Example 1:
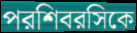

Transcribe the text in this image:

পরশিবরসিকে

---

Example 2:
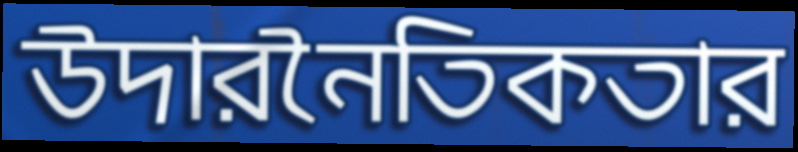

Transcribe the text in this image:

উদারনৈতিকতার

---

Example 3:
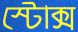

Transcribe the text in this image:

স্টোক্স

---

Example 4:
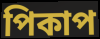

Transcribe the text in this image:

পিকাপ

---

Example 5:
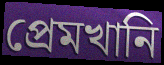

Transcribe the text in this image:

প্রেমখানি